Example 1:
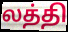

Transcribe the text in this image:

லத்தி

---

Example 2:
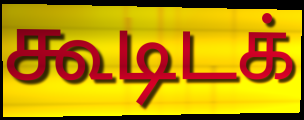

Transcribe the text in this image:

கூடிடக்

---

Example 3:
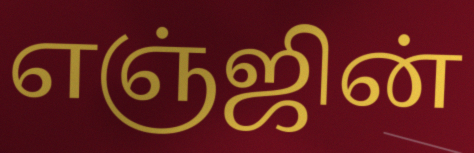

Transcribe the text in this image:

எஞ்ஜின்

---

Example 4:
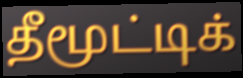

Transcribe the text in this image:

தீமூட்டிக்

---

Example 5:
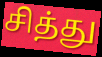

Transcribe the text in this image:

சித்து